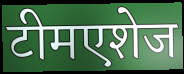
टीमएशेज